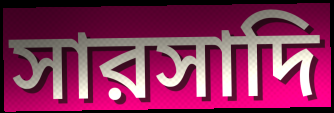
সারসাদি